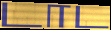
டாட